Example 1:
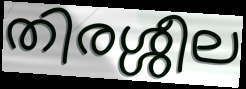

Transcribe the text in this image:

തിരശ്ശീല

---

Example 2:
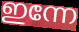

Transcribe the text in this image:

ഇന്നേ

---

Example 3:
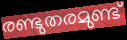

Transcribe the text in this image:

രണ്ടുതരമുണ്ട്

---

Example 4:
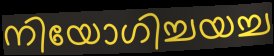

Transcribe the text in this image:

നിയോഗിച്ചയച്ച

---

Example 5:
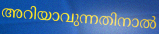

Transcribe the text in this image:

അറിയാവുന്നതിനാൽ